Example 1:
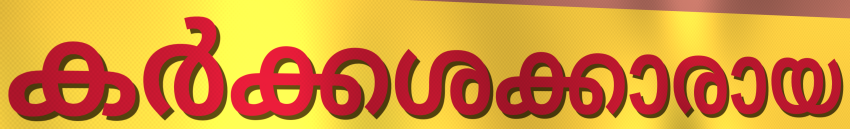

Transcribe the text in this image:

കർക്കശക്കാരായ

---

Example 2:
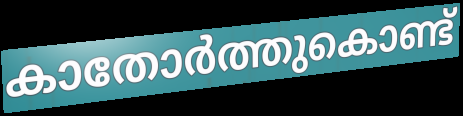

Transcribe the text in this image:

കാതോർത്തുകൊണ്ട്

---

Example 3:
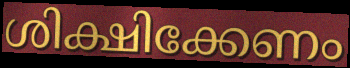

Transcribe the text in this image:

ശിക്ഷിക്കേണം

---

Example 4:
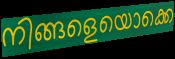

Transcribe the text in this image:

നിങ്ങളെയൊക്കെ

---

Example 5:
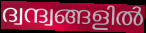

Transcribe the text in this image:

ദ്വന്ദ്വങ്ങളിൽ